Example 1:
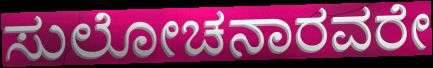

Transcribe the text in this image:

ಸುಲೋಚನಾರವರೇ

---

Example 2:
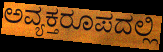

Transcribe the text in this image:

ಅವ್ಯಕ್ತರೂಪದಲ್ಲಿ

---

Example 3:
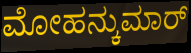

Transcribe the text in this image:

ಮೋಹನ್ಕುಮಾರ್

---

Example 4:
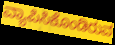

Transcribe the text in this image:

ವ್ಯಾಪಿಸಿಕೊಂಡಿರುವ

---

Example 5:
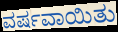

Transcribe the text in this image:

ವರ್ಷವಾಯಿತು